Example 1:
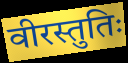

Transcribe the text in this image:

वीरस्तुतिः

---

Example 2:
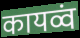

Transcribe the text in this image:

कायव्वं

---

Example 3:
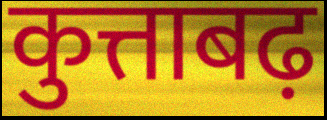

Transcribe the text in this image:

कुत्ताबढ़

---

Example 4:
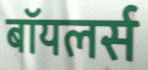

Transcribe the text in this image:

बॉयलर्स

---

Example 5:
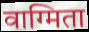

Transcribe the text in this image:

वाग्मिता